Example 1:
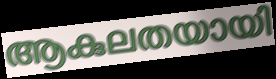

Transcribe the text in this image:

ആകുലതയായി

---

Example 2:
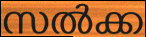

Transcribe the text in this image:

സൽക്ക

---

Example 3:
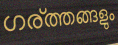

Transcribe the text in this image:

ഗര്ത്തങ്ങളും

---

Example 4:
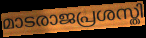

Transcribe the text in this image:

മാടരാജപ്രശസ്തി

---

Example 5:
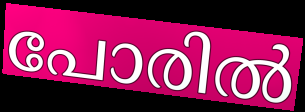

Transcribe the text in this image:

പോരിൽ